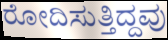
ರೋದಿಸುತ್ತಿದ್ದವು